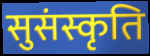
सुसंस्कृति